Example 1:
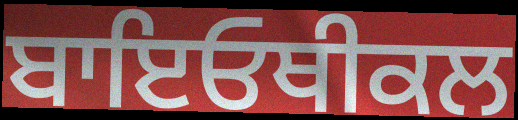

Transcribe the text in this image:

ਬਾਇਓਥੀਕਲ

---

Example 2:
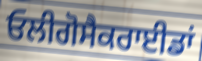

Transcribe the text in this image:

ਓਲੀਗੋਸੈਕਰਾਈਡਾਂ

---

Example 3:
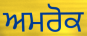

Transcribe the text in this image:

ਅਮਰੋਕ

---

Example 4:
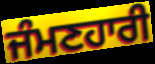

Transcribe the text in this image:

ਜੰਮਣਹਾਰੀ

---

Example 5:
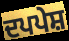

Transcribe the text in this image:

ਦਪਪੇਸ਼